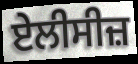
ਏਲੀਸੀਜ਼